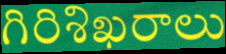
గిరిశిఖరాలు